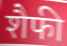
शैफी